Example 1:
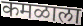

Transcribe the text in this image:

कमळाला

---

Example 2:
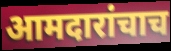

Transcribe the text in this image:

आमदारांचाच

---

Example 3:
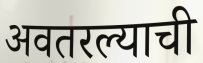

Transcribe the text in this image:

अवतरल्याची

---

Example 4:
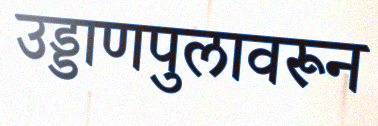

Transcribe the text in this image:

उड्डाणपुलावरून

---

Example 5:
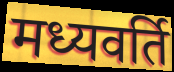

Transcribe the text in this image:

मध्यवर्ति